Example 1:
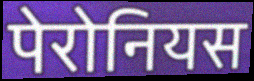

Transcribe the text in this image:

पेरोनियस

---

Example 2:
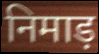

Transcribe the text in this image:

निमाड़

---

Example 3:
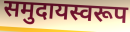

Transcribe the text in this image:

समुदायस्वरूप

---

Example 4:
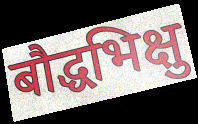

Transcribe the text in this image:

बौद्धभिक्षु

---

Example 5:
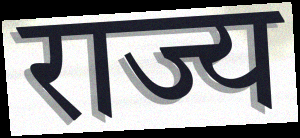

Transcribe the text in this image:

राज्‍य